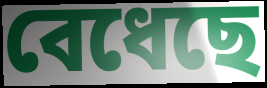
বেধেছে